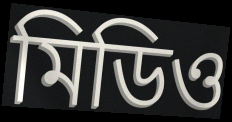
মিডিও